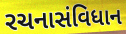
રચનાસંવિધાન